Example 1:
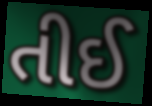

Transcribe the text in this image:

તીઈ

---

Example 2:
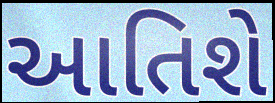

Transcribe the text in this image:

આતિશે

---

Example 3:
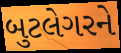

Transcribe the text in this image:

બુટલેગરને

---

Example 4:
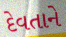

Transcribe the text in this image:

દેવતાને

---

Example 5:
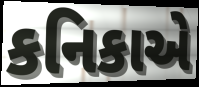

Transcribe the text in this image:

કનિકાએ